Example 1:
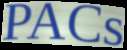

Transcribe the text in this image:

PACs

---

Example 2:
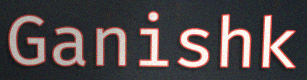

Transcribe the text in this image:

Ganishk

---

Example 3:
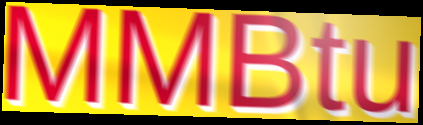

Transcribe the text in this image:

MMBtu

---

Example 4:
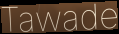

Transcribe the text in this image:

Tawade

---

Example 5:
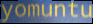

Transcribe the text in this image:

yomuntu